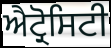
ਐਟ੍ਰੋਸਿਟੀ